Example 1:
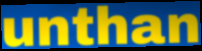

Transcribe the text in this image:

unthan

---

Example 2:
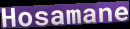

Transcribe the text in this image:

Hosamane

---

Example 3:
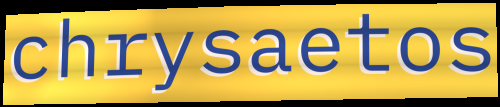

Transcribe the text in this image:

chrysaetos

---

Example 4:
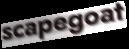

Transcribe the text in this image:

scapegoat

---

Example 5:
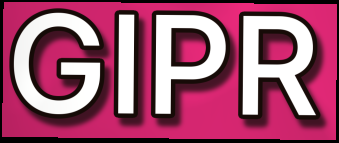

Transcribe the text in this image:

GIPR